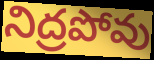
నిద్రపోవు